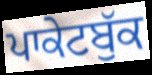
ਪਾਕੇਟਬੁੱਕ